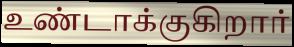
உண்டாக்குகிறார்